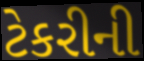
ટેકરીની